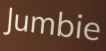
Jumbie